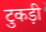
टुकड़ी